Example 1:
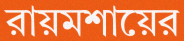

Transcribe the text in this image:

রায়মশায়ের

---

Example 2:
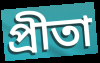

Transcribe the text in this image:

প্রীতা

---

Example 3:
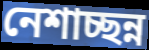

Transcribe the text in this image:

নেশাচ্ছন্ন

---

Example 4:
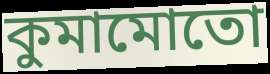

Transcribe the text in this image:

কুমামোতো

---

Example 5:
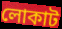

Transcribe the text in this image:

লোকাট